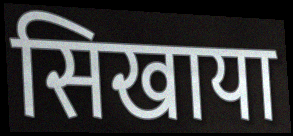
सिखाया